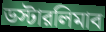
ডস্টারলিমাব